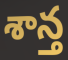
శాన్త